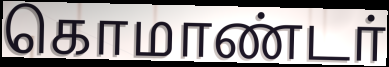
கொமாண்டர்